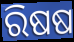
ରିଷଷ